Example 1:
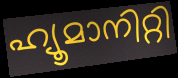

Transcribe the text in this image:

ഹ്യൂമാനിറ്റി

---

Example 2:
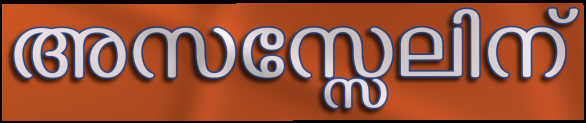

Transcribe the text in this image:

അസസ്സേലിന്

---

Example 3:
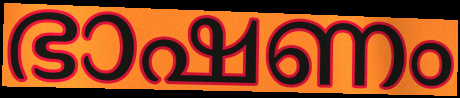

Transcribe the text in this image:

ഭാഷണം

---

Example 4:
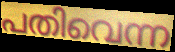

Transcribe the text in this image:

പതിവെന്ന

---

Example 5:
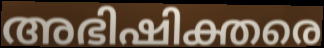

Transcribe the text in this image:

അഭിഷിക്തരെ